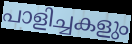
പാളിച്ചകളും